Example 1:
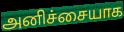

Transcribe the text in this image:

அனிச்சையாக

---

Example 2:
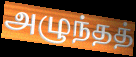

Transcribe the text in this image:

அழுந்தத்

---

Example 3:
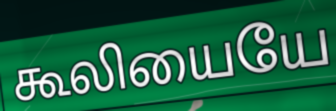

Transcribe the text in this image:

கூலியையே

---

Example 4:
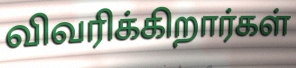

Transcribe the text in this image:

விவரிக்கிறார்கள்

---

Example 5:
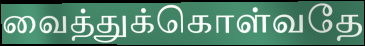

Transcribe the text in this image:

வைத்துக்கொள்வதே